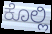
ಕೊಲ್ಲಿ